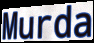
Murda